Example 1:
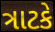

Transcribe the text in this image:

ત્રાટકે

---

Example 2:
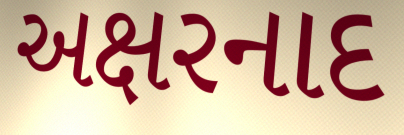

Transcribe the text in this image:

અક્ષરનાદ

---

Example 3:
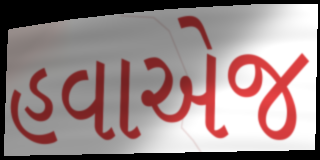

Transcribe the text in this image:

હવાએજ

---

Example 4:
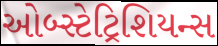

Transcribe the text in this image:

ઓબ્સ્ટેટ્રિશિયન્સ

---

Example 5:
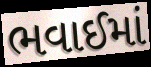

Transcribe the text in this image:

ભવાઈમાં